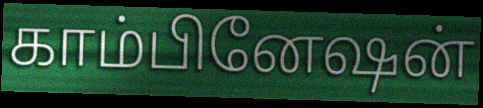
காம்பினேஷன்